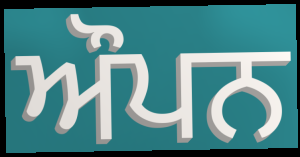
ਔਪਨ